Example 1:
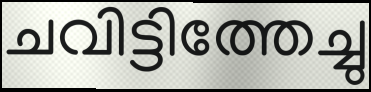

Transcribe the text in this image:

ചവിട്ടിത്തേച്ചു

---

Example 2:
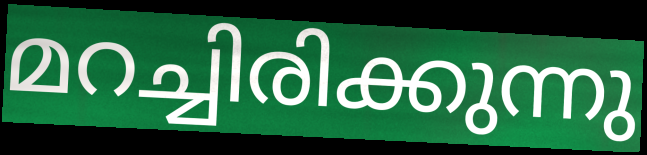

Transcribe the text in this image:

മറച്ചിരിക്കുന്നു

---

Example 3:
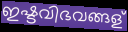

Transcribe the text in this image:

ഇഷ്ടവിഭവങ്ങള്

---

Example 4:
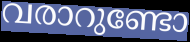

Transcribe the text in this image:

വരാറുണ്ടോ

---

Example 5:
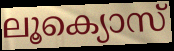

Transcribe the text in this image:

ലൂക്യൊസ്